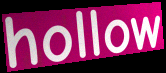
hollow